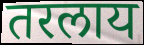
तरलाय